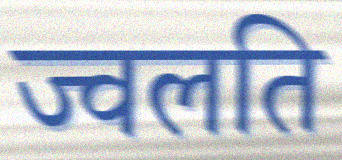
ज्वलति